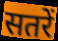
सतरें